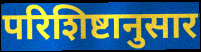
परिशिष्टानुसार